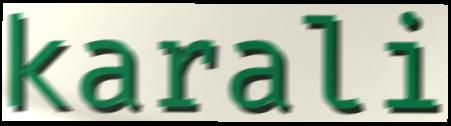
karali